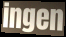
ingen